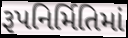
રૂપનિર્મિતિમાં